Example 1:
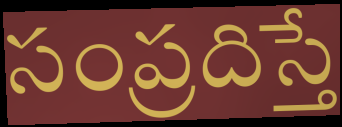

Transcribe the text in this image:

సంప్రదిస్తే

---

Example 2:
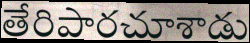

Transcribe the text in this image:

తేరిపారచూశాడు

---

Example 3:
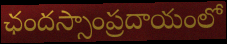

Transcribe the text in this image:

ఛందస్సాంప్రదాయంలో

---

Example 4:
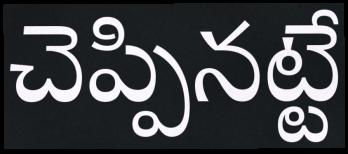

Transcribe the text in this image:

చెప్పినట్టే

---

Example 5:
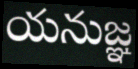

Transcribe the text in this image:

యనుజ్ఞ